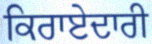
ਕਿਰਾਏਦਾਰੀ